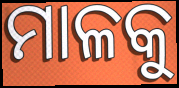
ମାଳକୁ